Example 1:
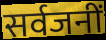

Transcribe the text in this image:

सर्वजनीं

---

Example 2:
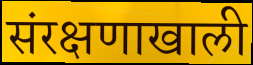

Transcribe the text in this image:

संरक्षणाखाली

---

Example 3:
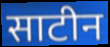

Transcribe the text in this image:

साटीन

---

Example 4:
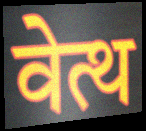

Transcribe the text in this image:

वेत्थ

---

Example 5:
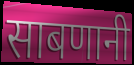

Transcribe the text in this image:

साबणानी